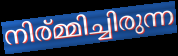
നിര്മ്മിച്ചിരുന്ന